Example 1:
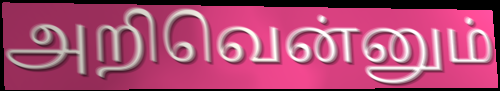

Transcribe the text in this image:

அறிவென்னும்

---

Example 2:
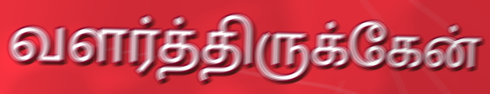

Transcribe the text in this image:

வளர்த்திருக்கேன்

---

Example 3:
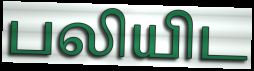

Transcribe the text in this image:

பலியிட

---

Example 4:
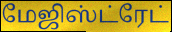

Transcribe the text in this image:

மேஜிஸ்ட்ரேட்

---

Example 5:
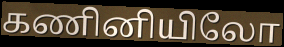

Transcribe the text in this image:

கணினியிலோ